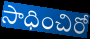
సాధించిరో